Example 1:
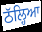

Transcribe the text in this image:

ਠੱਲ੍ਹਿਆ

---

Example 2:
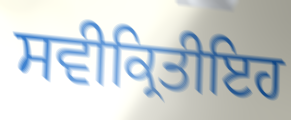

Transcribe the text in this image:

ਸਵੀਕ੍ਰਿਤੀਇਹ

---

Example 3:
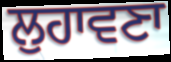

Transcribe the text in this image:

ਲੁਹਾਵਣਾ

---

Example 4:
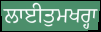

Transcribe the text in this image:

ਲਾਈਤੁਮਖਰ੍ਹਾ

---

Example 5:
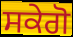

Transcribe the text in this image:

ਸਕੇਗੋ